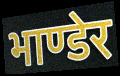
भाण्डेर